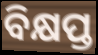
ବିକ୍ଷପ୍ତ